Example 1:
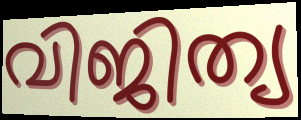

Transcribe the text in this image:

വിജിത്യ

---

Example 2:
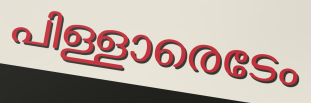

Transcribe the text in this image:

പിള്ളാരെടേം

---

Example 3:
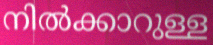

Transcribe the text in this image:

നിൽക്കാറുള്ള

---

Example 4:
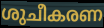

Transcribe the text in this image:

ശുചീകരണ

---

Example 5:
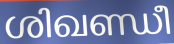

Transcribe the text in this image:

ശിഖണ്ഡീ